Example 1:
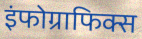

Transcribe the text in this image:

इंफोग्राफिक्स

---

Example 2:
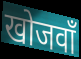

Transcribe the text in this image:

खोजवाँ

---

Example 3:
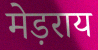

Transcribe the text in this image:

मेड़राय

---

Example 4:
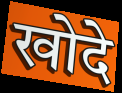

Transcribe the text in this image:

खोदे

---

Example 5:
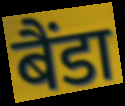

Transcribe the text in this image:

बैंडा